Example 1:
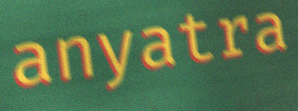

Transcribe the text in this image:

anyatra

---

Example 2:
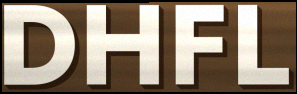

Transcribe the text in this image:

DHFL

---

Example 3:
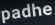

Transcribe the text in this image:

padhe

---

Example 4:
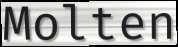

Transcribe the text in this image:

Molten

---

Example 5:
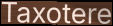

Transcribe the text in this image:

Taxotere